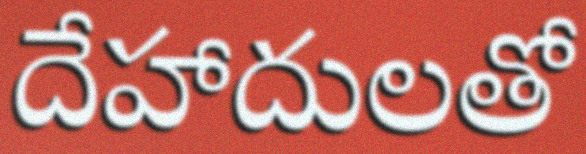
దేహాదులతో